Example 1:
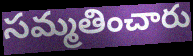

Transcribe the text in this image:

సమ్మతించారు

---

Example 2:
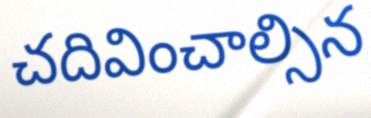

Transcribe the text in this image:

చదివించాల్సిన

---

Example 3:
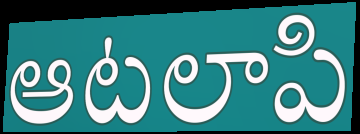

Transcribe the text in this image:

ఆటలాపి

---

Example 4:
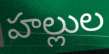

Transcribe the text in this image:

హల్లుల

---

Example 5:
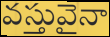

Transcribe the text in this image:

వస్తువైనా